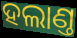
ହଲାଣ୍ତ